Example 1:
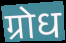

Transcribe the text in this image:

ग्रोध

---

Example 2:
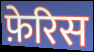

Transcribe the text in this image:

फ़ेरिस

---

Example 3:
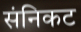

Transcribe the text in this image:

संनिकट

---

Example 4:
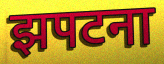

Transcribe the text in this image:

झपटना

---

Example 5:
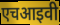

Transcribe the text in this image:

एचआइवी